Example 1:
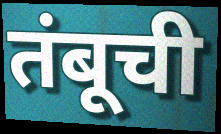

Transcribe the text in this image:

तंबूची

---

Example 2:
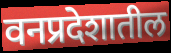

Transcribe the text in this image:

वनप्रदेशातील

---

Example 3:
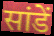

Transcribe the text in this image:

सांडें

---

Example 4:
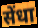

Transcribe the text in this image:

सेंधा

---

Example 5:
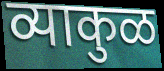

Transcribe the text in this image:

व्याकुळ